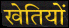
खेतियों